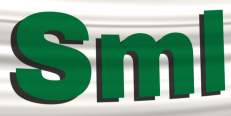
Sml